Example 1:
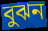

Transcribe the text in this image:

বুঝন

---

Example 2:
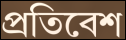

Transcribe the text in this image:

প্রতিবেশ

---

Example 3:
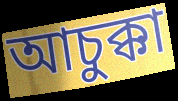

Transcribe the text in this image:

আচুক্কা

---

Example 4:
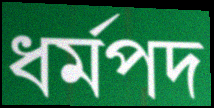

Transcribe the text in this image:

ধর্মপদ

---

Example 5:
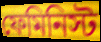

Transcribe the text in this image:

ফেমিনিস্ট